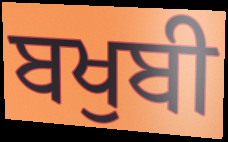
ਬਖੁਬੀ